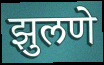
झुलणे